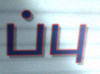
ப்பு